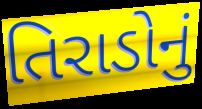
તિરાડોનું